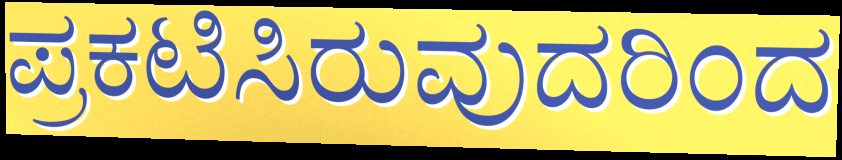
ಪ್ರಕಟಿಸಿರುವುದರಿಂದ